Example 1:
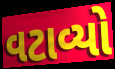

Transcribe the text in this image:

વટાવ્યો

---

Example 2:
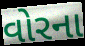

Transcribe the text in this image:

વોરના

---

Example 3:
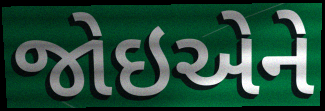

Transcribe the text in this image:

જોઇએને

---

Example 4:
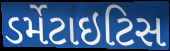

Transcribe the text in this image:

ડર્મેટાઇટિસ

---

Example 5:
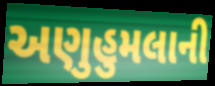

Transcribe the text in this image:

અણુહુમલાની